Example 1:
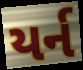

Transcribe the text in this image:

યર્ન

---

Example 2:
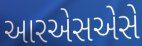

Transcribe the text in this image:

આરએસએસે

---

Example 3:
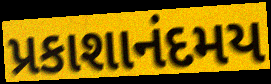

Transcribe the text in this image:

પ્રકાશાનંદમય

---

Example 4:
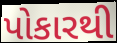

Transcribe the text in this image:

પોકારથી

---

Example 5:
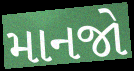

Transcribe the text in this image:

માનજો